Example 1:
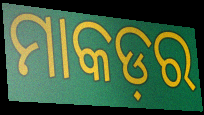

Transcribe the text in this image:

ମାକଡ଼ର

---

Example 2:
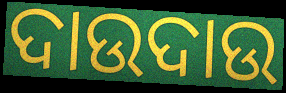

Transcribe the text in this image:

ଦାଉଦାଉ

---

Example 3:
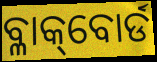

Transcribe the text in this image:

ବ୍ଳାକ୍‌ବୋର୍ଡ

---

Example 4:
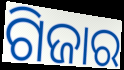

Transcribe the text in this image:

ଗିଜାର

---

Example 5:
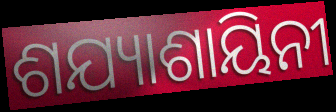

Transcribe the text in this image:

ଶଯ୍ୟାଶାୟିନୀ